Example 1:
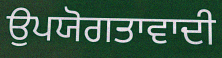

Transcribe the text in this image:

ਉਪਯੋਗਤਾਵਾਦੀ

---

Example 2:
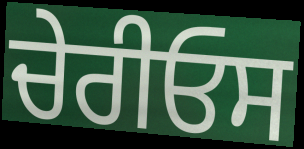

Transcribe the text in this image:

ਚੇਰੀਓਸ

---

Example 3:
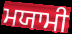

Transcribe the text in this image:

ਮਯਾਮੀ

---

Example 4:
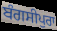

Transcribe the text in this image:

ਬੰਗਸੀਪੁਰਾ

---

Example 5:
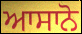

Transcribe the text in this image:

ਆਸਾਨੋ